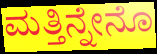
ಮತ್ತಿನ್ನೇನೊ